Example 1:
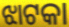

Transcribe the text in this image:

ଝାଟକା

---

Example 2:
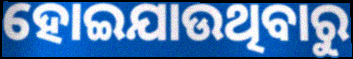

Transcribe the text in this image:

ହୋଇଯାଉଥିବାରୁ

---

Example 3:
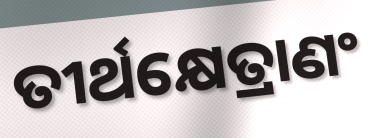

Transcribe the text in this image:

ତୀର୍ଥକ୍ଷେତ୍ରାଣଂ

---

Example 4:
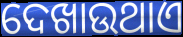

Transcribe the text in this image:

ଦେଖାଉଥାଏ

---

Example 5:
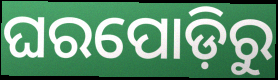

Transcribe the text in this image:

ଘରପୋଡ଼ିରୁ